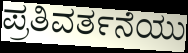
ಪ್ರತಿವರ್ತನೆಯು